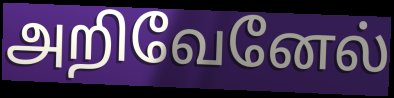
அறிவேனேல்